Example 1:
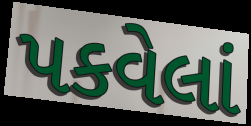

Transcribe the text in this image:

પકવેલાં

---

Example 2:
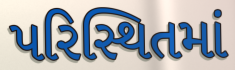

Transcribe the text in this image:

પરિસ્થિતમાં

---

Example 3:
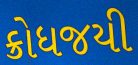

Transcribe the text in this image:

ક્રોધજયી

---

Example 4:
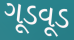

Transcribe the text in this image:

ગૂડવૂડ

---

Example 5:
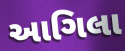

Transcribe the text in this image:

આગિલા